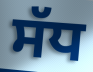
ਸੱਧ